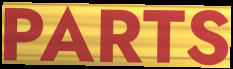
PARTS